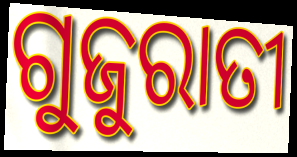
ଗୁଜୁରାତୀ